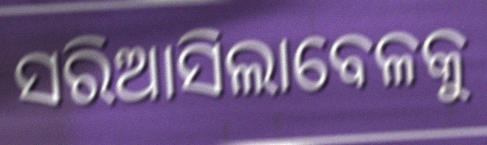
ସରିଆସିଲାବେଳକୁ